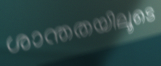
ശാന്തതയിലൂടെ